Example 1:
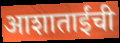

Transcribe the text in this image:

आशाताईंची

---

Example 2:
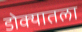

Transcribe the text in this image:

डोक्‍यातला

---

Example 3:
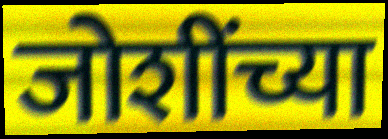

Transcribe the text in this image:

जोशींच्या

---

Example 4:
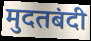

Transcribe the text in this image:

मुदतबंदी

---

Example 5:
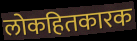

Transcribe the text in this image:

लोकहितकारक